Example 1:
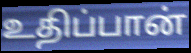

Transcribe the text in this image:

உதிப்பான்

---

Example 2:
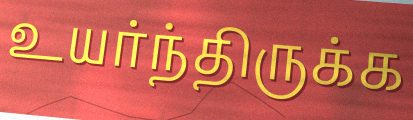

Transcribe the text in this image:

உயர்ந்திருக்க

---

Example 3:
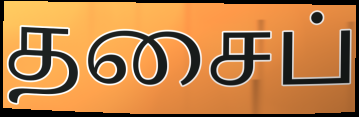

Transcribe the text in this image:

தசைப்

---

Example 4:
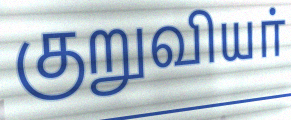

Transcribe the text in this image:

குறுவியர்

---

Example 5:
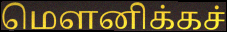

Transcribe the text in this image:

மௌனிக்கச்